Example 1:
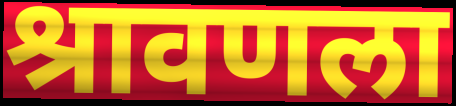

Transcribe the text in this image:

श्रावणला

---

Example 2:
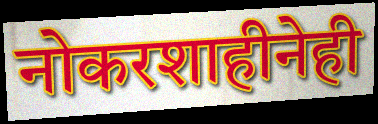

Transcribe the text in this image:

नोकरशाहीनेही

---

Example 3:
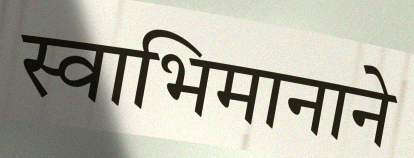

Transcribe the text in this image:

स्वाभिमानाने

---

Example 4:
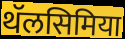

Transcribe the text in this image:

थॅलसिमिया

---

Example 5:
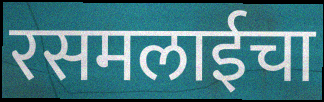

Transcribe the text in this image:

रसमलाईचा